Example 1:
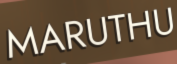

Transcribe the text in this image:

MARUTHU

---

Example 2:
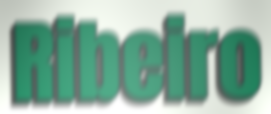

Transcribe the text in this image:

Ribeiro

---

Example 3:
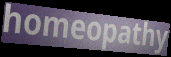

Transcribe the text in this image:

homeopathy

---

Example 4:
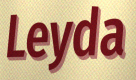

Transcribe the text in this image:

Leyda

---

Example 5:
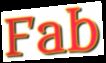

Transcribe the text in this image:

Fab